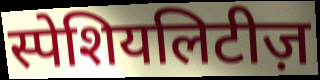
स्पेशियलिटीज़